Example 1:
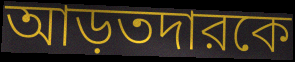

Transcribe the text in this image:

আড়তদারকে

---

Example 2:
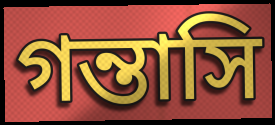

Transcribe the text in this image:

গন্তাসি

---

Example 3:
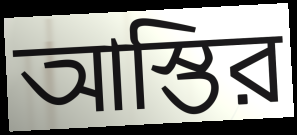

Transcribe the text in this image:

আস্তির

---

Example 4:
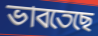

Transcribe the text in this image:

ভাবতেছে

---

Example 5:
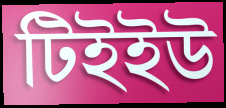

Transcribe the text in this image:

টিইইউ